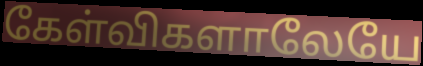
கேள்விகளாலேயே